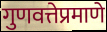
गुणवत्तेप्रमाणे